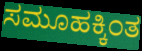
ಸಮೂಹಕ್ಕಿಂತ